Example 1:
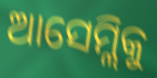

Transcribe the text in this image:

ଆସେମ୍ଲିକୁ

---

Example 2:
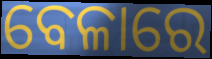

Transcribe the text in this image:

ବେଳାରେ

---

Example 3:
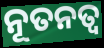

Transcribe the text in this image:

ନୂତନତ୍ୱ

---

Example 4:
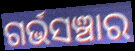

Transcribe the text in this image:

ଗର୍ଭସଞ୍ଚାର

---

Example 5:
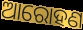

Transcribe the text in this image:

ଆରୋହଣ